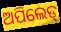
ଅପିଲେଡ୍